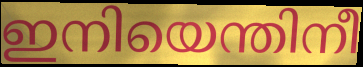
ഇനിയെന്തിനീ